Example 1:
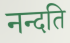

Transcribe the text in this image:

नन्दति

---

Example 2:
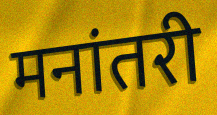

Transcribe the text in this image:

मनांतरी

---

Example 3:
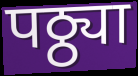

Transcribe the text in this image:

पठ्ठ्या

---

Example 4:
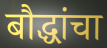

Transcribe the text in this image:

बौद्धांचा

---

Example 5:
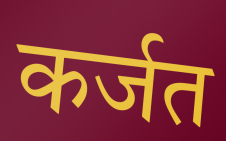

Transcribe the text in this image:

कर्जत